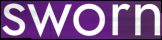
sworn